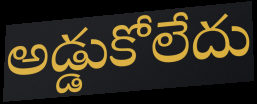
అడ్డుకోలేదు